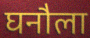
घनौला